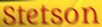
Stetson